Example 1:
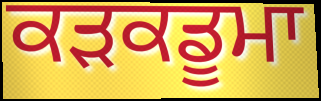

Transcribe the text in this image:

ਕੜਕਡੂਮਾ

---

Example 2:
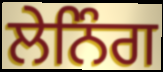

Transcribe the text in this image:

ਲੇਨਿੰਗ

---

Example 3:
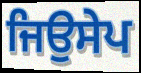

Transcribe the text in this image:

ਜਿਉਸੇਪ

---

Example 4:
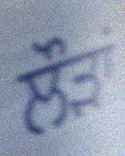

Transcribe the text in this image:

ਲੌੜਾਂ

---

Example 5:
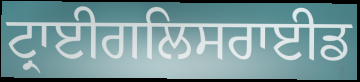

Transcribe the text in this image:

ਟ੍ਰਾਈਗਲਿਸਰਾਈਡ